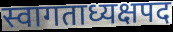
स्वागताध्यक्षपद